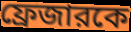
ফ্রেজারকে